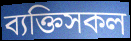
ব্যক্তিসকল